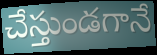
చేస్తుండగానే